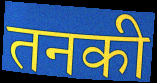
तनकी